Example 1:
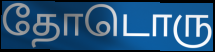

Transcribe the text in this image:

தோடொரு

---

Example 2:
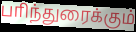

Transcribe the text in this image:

பரிந்துரைக்கும்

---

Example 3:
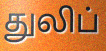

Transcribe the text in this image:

துலிப்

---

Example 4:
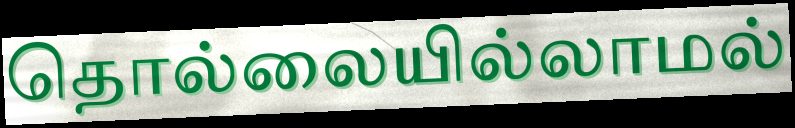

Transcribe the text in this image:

தொல்லையில்லாமல்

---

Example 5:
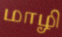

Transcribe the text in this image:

மாழி